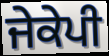
ਜੇਕੇਪੀ